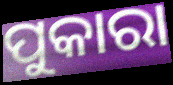
ପୁକାରା